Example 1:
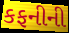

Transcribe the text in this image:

કફનીની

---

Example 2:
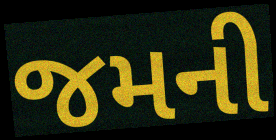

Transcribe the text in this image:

જમની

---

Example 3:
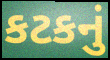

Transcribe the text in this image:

કટકનું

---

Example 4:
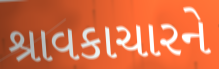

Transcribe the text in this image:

શ્રાવકાચારને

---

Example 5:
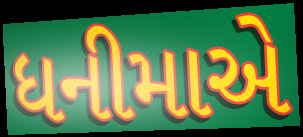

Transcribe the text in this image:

ધનીમાએ